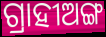
ଗ୍ରାହୀଅଙ୍ଗ